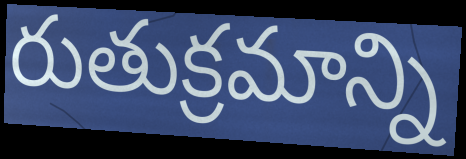
రుతుక్రమాన్ని